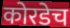
कोरडेच